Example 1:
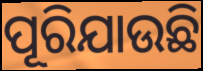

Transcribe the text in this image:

ପୂରିଯାଉଛି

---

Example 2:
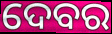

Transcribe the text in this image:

ଦେବର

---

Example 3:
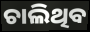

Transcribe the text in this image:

ଚାଲିଥିବ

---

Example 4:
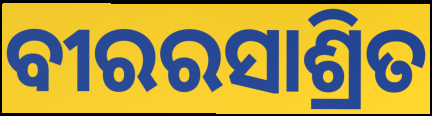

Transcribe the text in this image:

ବୀରରସାଶ୍ରିତ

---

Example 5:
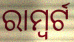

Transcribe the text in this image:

ରାମ୍ବର୍ଟ